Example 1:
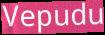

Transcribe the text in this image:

Vepudu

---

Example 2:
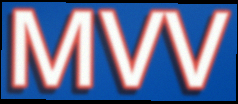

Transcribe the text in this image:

MVV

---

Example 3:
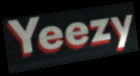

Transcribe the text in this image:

Yeezy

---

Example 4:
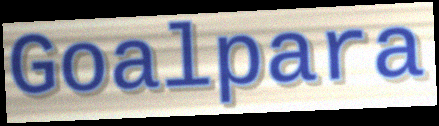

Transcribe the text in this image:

Goalpara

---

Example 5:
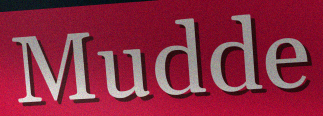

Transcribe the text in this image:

Mudde